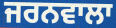
ਜਰਨਵਾਲਾ